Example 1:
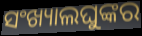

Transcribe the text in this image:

ସଂଖ୍ୟାଲଘୁଙ୍କର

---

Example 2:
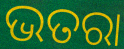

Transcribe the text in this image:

ଭତରା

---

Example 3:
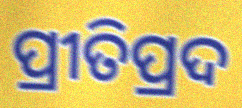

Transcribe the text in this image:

ପ୍ରୀତିପ୍ରଦ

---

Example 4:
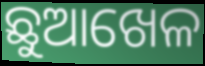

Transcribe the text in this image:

ଛୁଆଖେଳ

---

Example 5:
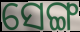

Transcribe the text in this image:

ସେଙ୍ଗ